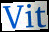
Vit